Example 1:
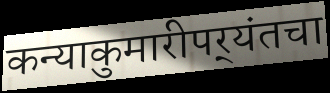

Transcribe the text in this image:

कन्याकुमारीपर्यंतचा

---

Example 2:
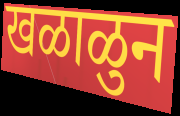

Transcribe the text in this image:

खळाळुन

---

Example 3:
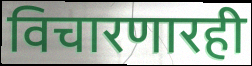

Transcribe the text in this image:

विचारणारही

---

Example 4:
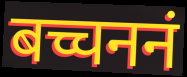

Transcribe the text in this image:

बच्चननं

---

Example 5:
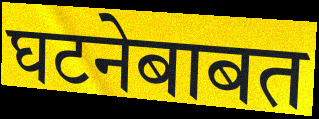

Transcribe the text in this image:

घटनेबाबत